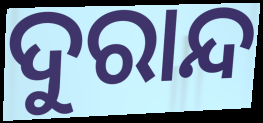
ଦୁରାନ୍ଦ